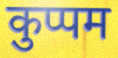
कुप्पम